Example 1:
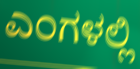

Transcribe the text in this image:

ಎಂಗಳಲ್ಲಿ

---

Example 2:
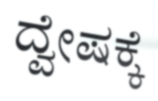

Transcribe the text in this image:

ದ್ವೇಷಕ್ಕೆ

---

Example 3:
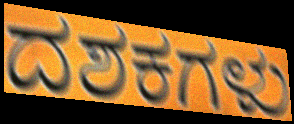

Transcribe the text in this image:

ದಶಕಗಳು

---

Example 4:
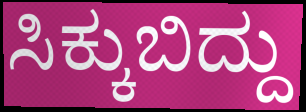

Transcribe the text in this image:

ಸಿಕ್ಕುಬಿದ್ದು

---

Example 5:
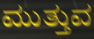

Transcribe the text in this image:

ಮುತ್ತುವ